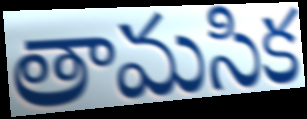
తామసిక